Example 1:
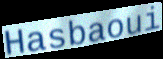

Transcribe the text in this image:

Hasbaoui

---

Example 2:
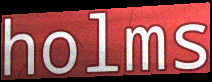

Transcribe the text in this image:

holms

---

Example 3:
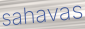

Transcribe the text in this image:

sahavas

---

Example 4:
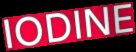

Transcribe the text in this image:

IODINE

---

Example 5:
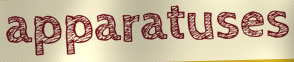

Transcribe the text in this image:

apparatuses